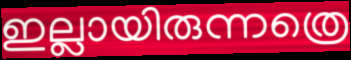
ഇല്ലായിരുന്നത്രെ